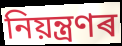
নিয়ন্ত্ৰণৰ